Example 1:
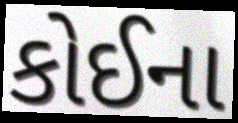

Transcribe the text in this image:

કોઈના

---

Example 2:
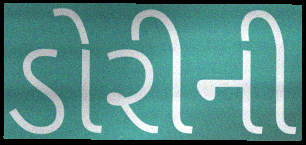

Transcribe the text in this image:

ડોરીની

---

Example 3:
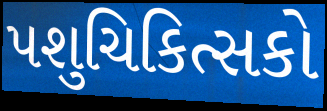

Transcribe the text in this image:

પશુચિકિત્સકો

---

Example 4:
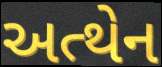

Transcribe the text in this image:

અત્થેન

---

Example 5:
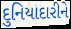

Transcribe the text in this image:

દુનિયાદારીને